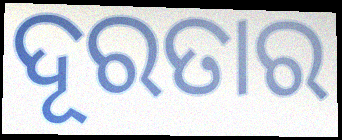
ଦୂରତାର